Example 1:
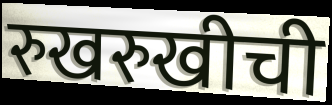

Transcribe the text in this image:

रुखरुखीची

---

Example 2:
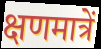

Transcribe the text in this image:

क्षणमात्रें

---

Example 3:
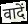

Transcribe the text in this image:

वादें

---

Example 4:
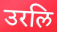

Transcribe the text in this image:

उरलि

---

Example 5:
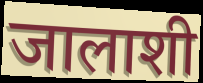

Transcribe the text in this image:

जालाशी